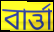
বার্ত্তা